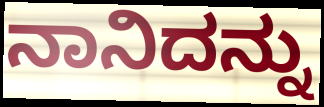
ನಾನಿದನ್ನು